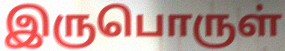
இருபொருள்